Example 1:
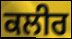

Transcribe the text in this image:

ਕਲੀਰ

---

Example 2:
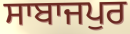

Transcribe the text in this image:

ਸਾਬਾਜਪੁਰ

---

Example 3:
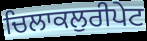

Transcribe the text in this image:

ਚਿਲਾਕਲੁਰੀਪੇਟ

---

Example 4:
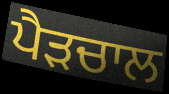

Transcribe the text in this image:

ਪੈੜਚਾਲ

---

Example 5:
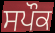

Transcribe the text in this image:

ਸਪੌਕ